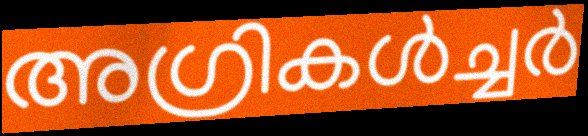
അഗ്രികൾച്ചർ